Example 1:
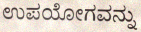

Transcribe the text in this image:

ಉಪಯೋಗವನ್ನು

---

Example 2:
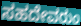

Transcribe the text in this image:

ಸಹದೇವರುಂ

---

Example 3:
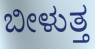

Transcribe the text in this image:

ಬೀಳುತ್ತ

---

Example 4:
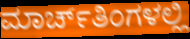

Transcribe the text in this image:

ಮಾರ್ಚ್‌ತಿಂಗಳಲ್ಲಿ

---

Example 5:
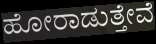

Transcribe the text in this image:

ಹೋರಾಡುತ್ತೇವೆ